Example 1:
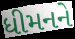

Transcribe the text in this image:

ધીમનને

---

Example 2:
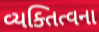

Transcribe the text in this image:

વ્યક્તિત્વના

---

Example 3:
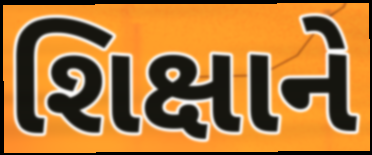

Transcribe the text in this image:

શિક્ષાને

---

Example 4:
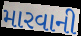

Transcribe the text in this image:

મારવાની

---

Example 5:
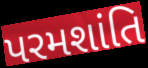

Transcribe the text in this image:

પરમશાંતિ